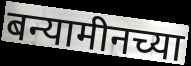
बन्यामीनच्या